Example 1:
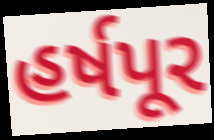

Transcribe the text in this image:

હર્ષપૂર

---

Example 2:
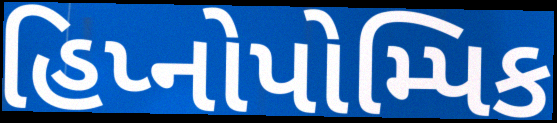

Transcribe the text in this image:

હિપ્નોપોમ્પિક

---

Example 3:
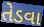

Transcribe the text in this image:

તેડવા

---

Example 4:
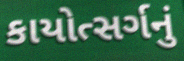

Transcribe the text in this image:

કાયોત્સર્ગનું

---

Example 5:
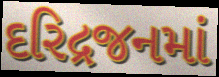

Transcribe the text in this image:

દરિદ્રજનમાં